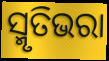
ସ୍ମୃତିଭରା